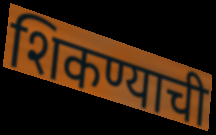
शिकण्याची